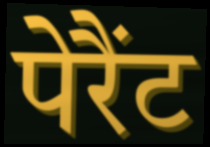
पेरैंट